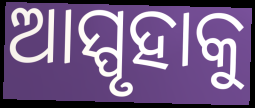
ଆସ୍ପୃହାକୁ